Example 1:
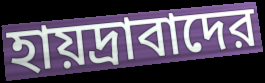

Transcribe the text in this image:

হায়দ্রাবাদের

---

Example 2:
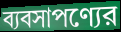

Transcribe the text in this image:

ব্যবসাপণ্যের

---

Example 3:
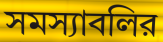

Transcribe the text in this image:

সমস্যাবলির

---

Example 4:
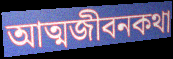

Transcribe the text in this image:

আত্মজীবনকথা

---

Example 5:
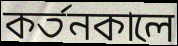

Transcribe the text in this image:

কর্তনকালে